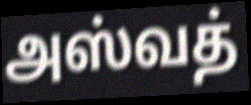
அஸ்வத்